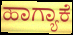
ಹಾಗ್ಯಾಕೆ